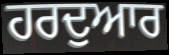
ਹਰਦੁਆਰ